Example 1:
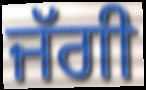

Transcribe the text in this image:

ਜੱਗੀ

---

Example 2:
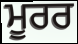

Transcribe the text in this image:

ਮੂਰਰ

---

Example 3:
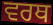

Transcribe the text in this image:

ਵਰਥ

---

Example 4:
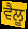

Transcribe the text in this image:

ਵੈਲੂ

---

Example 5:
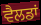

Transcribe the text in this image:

ਵੈਲਡਾਂ